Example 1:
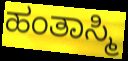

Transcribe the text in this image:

ಹಂತಾಸ್ಮಿ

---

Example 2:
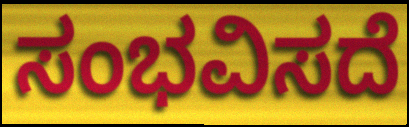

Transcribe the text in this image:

ಸಂಭವಿಸದೆ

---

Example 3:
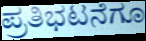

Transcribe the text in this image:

ಪ್ರತಿಭಟನೆಗೂ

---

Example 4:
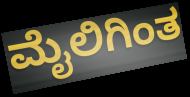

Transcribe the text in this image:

ಮೈಲಿಗಿಂತ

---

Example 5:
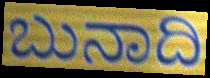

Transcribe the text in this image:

ಬುನಾದಿ